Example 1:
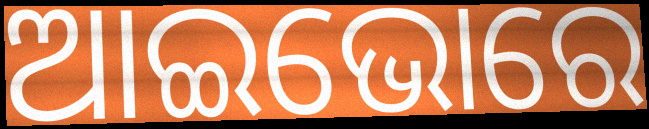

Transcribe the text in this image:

ଆଇଭୋରେ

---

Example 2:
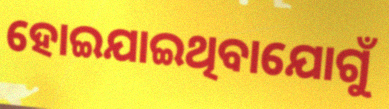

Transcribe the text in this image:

ହୋଇଯାଇଥିବାଯୋଗୁଁ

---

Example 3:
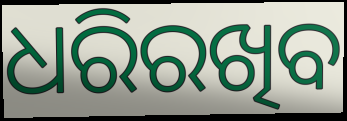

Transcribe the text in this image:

ଧରିରଖିବ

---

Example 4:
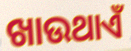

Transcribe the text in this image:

ଖାଉଥାଏଁ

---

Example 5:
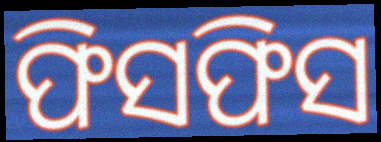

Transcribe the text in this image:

ଫିସଫିସ